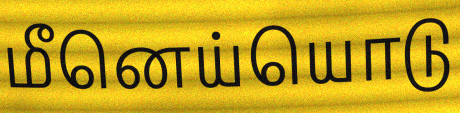
மீனெய்யொடு